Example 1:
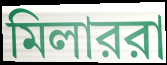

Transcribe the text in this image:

মিলাররা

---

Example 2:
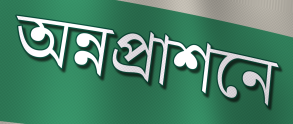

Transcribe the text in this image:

অন্নপ্রাশনে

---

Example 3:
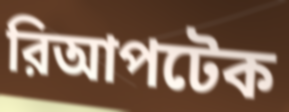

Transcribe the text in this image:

রিআপটেক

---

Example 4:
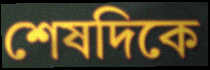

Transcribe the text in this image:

শেষদিকে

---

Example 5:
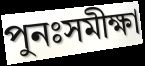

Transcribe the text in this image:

পুনঃসমীক্ষা